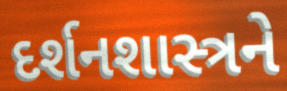
દર્શનશાસ્ત્રને